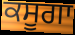
ਕਸੂਗਾ